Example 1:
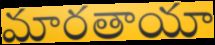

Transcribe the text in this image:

మారతాయా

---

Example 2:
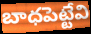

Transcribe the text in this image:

బాధపెట్టేవి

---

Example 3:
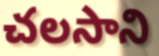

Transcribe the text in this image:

చలసాని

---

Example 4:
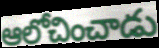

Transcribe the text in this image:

ఆలోచించాడు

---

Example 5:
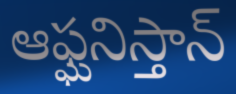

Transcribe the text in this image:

ఆఫ్ఘనిస్తాన్